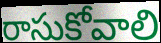
రాసుకోవాలి